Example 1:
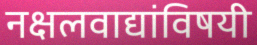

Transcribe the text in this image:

नक्षलवाद्यांविषयी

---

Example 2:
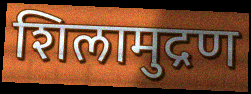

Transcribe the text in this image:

शिलामुद्रण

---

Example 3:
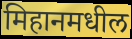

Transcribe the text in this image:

मिहानमधील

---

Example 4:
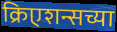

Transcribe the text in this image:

क्रिएशन्सच्या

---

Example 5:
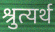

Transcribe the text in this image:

श्रुत्यर्थ